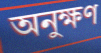
অনুক্ষণ